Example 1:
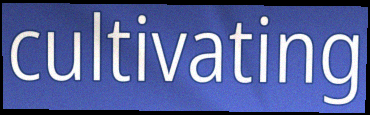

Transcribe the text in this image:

cultivating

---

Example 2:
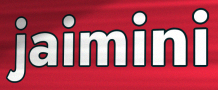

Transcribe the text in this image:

jaimini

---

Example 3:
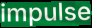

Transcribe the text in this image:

impulse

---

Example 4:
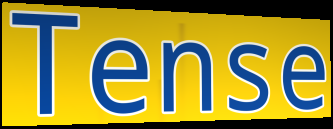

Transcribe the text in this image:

Tense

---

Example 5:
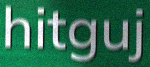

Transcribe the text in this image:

hitguj